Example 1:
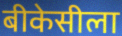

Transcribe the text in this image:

बीकेसीला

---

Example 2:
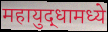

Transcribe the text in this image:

महायुद्धामध्ये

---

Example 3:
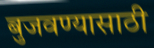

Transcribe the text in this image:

बुजवण्यासाठी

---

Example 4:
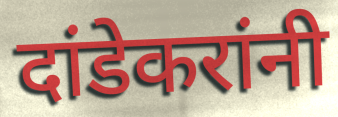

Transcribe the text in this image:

दांडेकरांनी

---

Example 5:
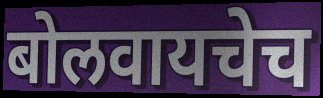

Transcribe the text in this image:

बोलवायचेच